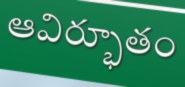
ఆవిర్భూతం